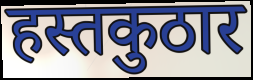
हस्तकुठार